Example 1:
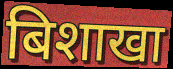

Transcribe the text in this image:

बिशाखा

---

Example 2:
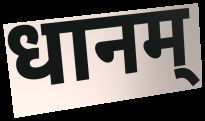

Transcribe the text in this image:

धानम्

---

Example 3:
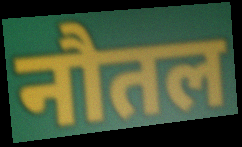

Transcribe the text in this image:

नौतल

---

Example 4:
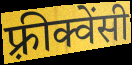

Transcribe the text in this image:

फ़्रीक्वेंसी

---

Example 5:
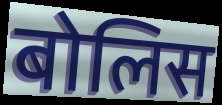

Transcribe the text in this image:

बोलिस